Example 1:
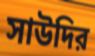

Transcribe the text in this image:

সাউদির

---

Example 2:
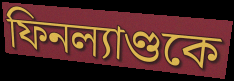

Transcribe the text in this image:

ফিনল্যাণ্ডকে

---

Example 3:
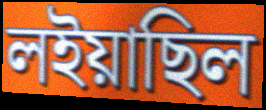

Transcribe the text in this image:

লইয়াছিল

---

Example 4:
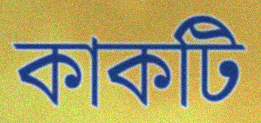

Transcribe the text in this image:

কাকটি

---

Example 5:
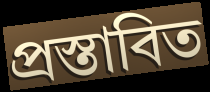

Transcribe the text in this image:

প্রস্তাবিত